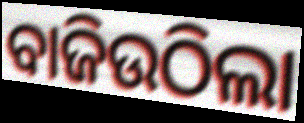
ବାଜିଉଠିଲା